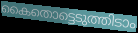
കൈതൊട്ടെടുത്തിടാം